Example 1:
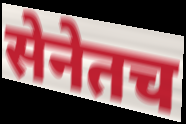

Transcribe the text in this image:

सेनेतच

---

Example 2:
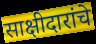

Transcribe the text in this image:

साक्षीदारांचे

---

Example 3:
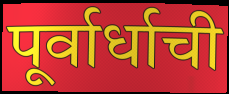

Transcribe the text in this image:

पूर्वार्धाची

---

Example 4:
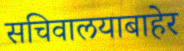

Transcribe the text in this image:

सचिवालयाबाहेर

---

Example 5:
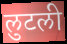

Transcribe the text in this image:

लुटली